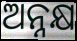
ଅନ୍ନକ୍ଷ